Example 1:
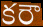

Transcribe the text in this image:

కరౌ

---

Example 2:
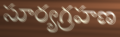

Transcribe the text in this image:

సూర్యగ్రహణ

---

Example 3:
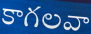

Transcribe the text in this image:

కాగలవా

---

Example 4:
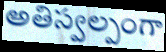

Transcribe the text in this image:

అతిస్వల్పంగా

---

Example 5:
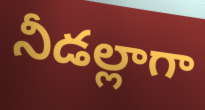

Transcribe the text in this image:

నీడల్లాగా